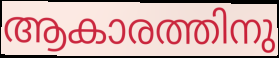
ആകാരത്തിനു